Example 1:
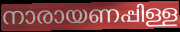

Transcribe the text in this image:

നാരായണപ്പിള്ള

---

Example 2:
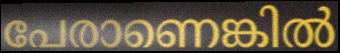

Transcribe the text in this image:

പേരാണെങ്കിൽ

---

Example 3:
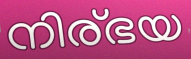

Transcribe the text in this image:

നിര്ഭയ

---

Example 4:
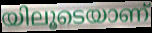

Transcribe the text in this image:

യിലൂടെയാണ്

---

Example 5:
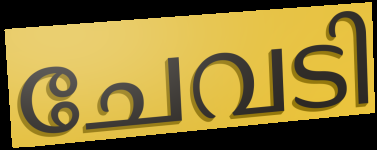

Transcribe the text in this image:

ചേവടി